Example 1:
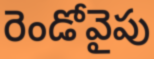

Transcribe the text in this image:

రెండోవైపు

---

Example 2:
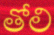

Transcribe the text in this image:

తోలి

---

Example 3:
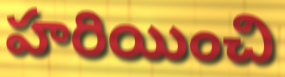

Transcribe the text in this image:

హరియించి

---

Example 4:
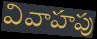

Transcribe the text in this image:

వివాహపు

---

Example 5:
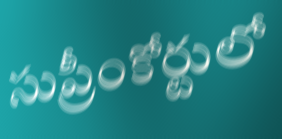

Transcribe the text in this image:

సుప్రీంకోర్టులో